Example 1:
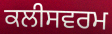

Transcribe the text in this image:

ਕਲੀਸਵਰਮ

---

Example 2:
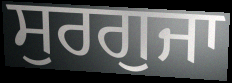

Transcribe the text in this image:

ਸੁਰਗੁਜਾ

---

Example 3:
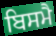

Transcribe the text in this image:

ਬਿਸਮੈ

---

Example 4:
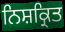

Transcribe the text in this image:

ਨਿਸ਼ਕ੍ਰਿਤ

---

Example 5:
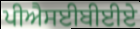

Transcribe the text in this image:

ਪੀਐਸਈਬੀਈਏ